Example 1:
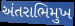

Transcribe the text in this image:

અંતરાભિમુખ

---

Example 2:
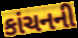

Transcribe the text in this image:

કાંચનની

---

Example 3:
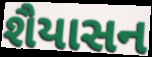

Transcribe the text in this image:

શૈયાસન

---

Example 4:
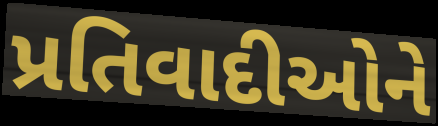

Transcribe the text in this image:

પ્રતિવાદીઓને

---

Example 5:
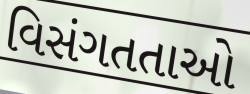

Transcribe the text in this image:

વિસંગતતાઓ